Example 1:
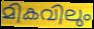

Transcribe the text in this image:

മികവിലും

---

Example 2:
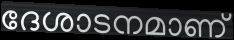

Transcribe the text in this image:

ദേശാടനമാണ്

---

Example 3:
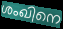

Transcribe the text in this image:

ശംഖിനെ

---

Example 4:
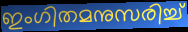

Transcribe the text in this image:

ഇംഗിതമനുസരിച്ച്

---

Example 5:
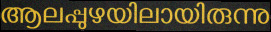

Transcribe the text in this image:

ആലപ്പുഴയിലായിരുന്നു